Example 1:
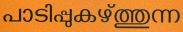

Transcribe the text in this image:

പാടിപ്പുകഴ്ത്തുന്ന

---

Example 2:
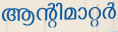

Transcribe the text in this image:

ആന്റിമാറ്റർ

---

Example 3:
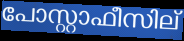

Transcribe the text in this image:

പോസ്റ്റാഫീസില്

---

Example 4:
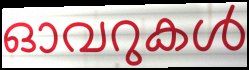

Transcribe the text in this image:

ഓവറുകൾ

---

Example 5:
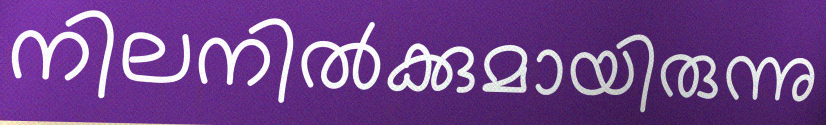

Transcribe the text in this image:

നിലനിൽക്കുമായിരുന്നു